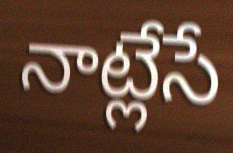
నాట్లేసే